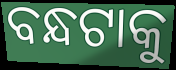
ବନ୍ଧଟାକୁ